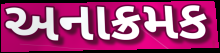
અનાક્રમક